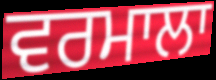
ਵਰਮਾਲਾ